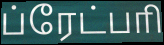
ப்ரேட்பரி